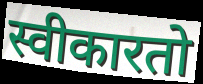
स्वीकारतो